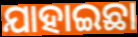
ଯାହାଇଛା